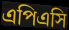
এপিএসি